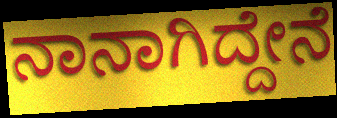
ನಾನಾಗಿದ್ದೇನೆ